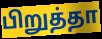
பிறுத்தா